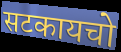
सटकायचो